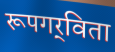
रूपगर्विता